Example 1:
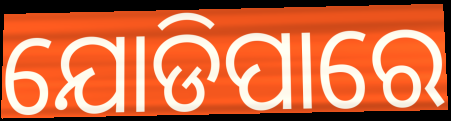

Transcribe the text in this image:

ଯୋଡିପାରେ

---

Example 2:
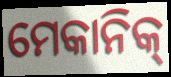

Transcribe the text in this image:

ମେକାନିକ୍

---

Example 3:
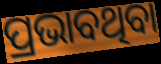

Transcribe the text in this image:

ପ୍ରଭାବଥିବା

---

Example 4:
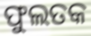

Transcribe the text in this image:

ଫୁଲତକ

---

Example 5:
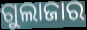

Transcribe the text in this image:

ଗୁଲାଜାର